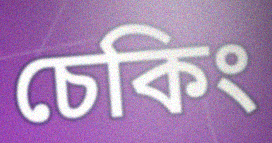
চেকিং